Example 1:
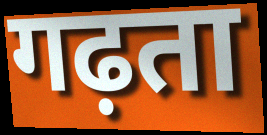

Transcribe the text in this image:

गढ़ता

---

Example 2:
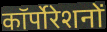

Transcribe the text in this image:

कॉर्पोरेशनों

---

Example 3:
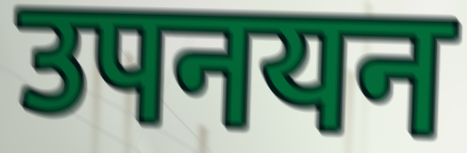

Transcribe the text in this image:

उपनयन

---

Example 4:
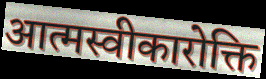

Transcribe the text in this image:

आत्मस्वीकारोक्ति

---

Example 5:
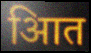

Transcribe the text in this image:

आित